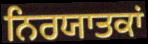
ਨਿਰਯਾਤਕਾਂ